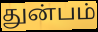
துன்பம்